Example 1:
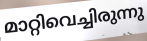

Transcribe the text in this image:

മാറ്റിവെച്ചിരുന്നു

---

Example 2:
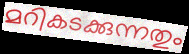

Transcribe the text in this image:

മറികടക്കുന്നതും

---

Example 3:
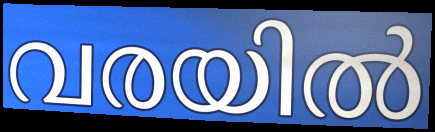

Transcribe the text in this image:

വരയിൽ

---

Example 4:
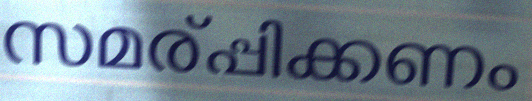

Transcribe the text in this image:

സമര്പ്പിക്കണം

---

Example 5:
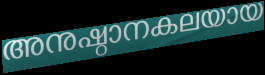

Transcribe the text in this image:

അനുഷ്ഠാനകലയായ